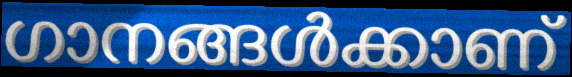
ഗാനങ്ങൾക്കാണ്